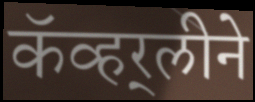
कॅव्हर्लीने